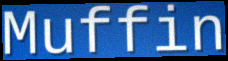
Muffin